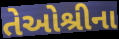
તેઓશ્રીના